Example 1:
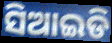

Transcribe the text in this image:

ସିଆଇଡି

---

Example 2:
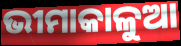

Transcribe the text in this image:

ଭୀମାକାଳୁଆ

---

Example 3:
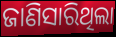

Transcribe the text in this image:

ଜାଣିସାରିଥିଲା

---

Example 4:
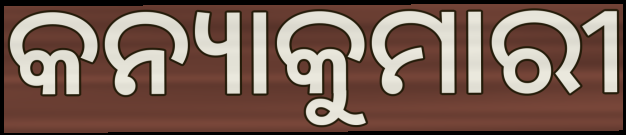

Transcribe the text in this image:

କନ୍ୟାକୁମାରୀ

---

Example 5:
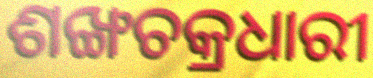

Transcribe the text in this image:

ଶଙ୍ଖଚକ୍ରଧାରୀ